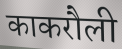
काकरौली